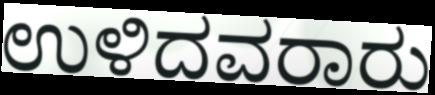
ಉಳಿದವರಾರು